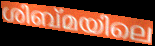
ശിബ്മയിലെ